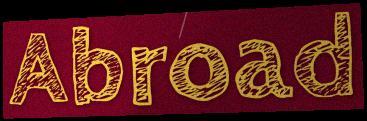
Abroad